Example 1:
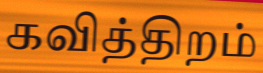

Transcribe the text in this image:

கவித்திறம்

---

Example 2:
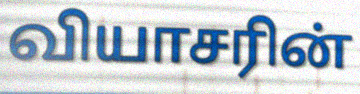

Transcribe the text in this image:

வியாசரின்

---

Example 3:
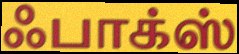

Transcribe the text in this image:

ஃபாக்ஸ்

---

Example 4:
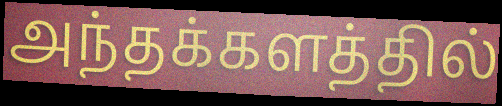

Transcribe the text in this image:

அந்தக்களத்தில்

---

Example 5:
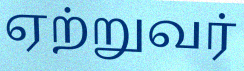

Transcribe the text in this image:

ஏற்றுவர்